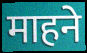
माहने